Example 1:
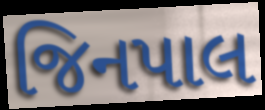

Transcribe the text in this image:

જિનપાલ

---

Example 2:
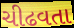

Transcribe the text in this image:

ચીઢવતા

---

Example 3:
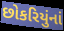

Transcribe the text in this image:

છોકરિયુંનાં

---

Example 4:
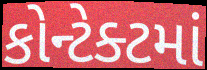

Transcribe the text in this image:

કોન્ટેક્ટમાં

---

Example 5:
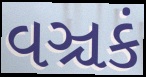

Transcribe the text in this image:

વઞ્ચકં